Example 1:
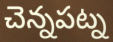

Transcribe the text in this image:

చెన్నపట్న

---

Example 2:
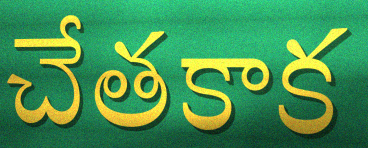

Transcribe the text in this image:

చేతకాక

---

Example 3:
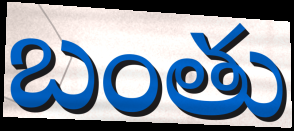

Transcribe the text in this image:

బంతు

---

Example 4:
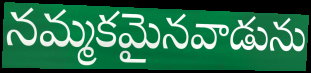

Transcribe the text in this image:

నమ్మకమైనవాడును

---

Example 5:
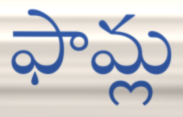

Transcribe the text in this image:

ఫామ్ల